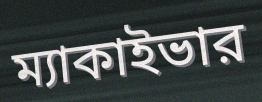
ম্যাকাইভার